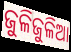
ଜୁଳିଜୁଳିଆ